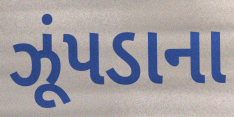
ઝૂંપડાના